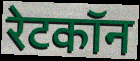
रेटकॉन